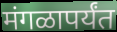
मंगळापर्यंत